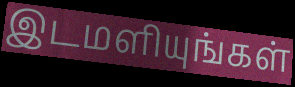
இடமளியுங்கள்